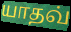
யாதவ்